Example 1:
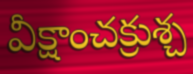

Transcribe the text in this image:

వీక్షాంచక్రుశ్చ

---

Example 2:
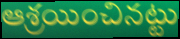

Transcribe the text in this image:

ఆశ్రయించినట్టు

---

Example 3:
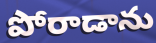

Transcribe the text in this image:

పోరాడాను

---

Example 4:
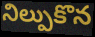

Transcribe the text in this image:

నిల్పుకొన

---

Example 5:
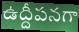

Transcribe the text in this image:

ఉద్దీపనగా